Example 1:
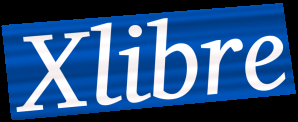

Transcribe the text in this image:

Xlibre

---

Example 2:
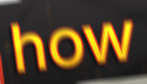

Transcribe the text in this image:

how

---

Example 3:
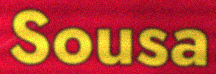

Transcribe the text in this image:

Sousa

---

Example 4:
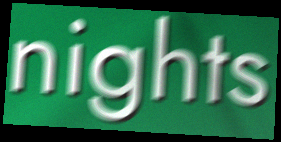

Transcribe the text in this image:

nights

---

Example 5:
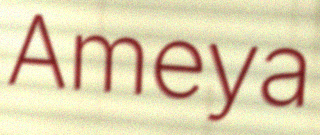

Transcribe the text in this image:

Ameya